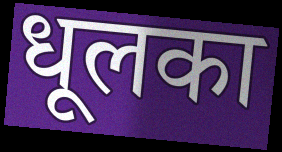
धूलका